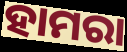
ହାମରା